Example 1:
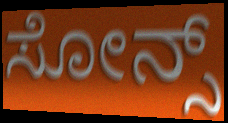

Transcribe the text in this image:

ಸೋನ್ಸ್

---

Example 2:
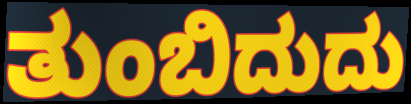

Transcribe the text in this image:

ತುಂಬಿದುದು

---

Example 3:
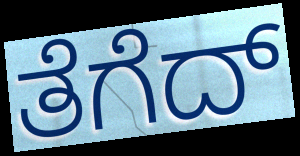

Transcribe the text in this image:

ತೆಗೆದ್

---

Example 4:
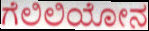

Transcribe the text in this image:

ಗೆಲಿಲಿಯೋನ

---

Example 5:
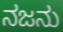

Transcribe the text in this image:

ನಜನು